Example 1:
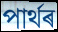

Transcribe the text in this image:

পাৰ্থৰ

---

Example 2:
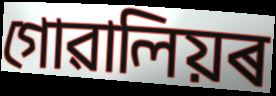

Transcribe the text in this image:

গোৱালিয়ৰ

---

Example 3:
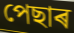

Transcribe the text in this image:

পেছাৰ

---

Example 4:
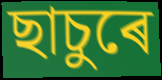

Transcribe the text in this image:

ছাচুৰে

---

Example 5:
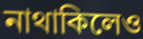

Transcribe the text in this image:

নাথাকিলেও